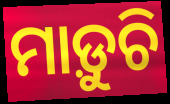
ମାଡ଼ୁଚି